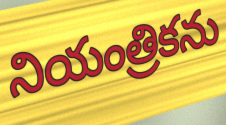
నియంత్రికను